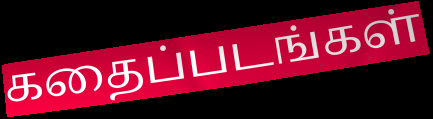
கதைப்படங்கள்